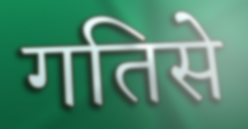
गतिसे